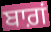
ਬਾਗ਼ਂ